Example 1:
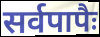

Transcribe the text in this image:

सर्वपापैः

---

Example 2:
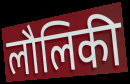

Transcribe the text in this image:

लौलिकी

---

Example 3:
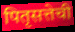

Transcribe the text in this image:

पितृसत्तेची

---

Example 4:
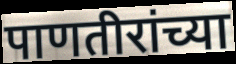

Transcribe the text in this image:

पाणतीरांच्या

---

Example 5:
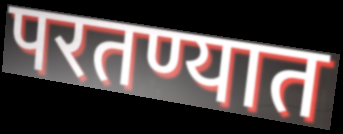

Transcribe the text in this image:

परतण्यात